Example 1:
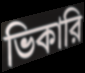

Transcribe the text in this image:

ভিকারি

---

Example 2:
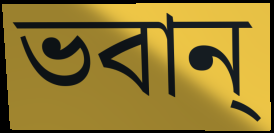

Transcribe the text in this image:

ভবান্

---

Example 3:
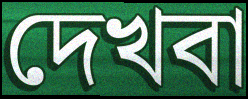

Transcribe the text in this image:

দেখবা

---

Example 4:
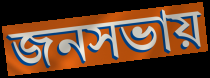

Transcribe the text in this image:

জনসভায়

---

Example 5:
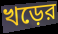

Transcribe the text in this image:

খড়ের